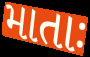
માતાઃ